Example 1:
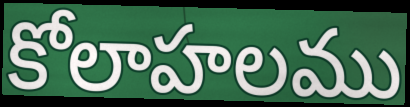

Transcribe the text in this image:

కోలాహలము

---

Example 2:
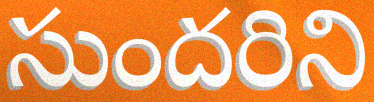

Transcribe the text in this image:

సుందరిని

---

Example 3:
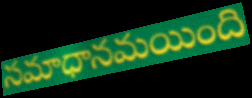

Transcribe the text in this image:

సమాధానమయింది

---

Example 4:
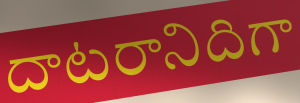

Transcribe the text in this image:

దాటరానిదిగా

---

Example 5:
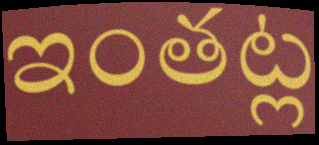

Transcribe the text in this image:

ఇంతట్ల